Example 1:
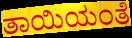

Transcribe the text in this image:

ತಾಯಿಯಂತೆ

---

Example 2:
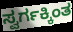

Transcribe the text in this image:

ಸ್ವರ್ಗಕ್ಕಿಂತ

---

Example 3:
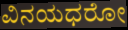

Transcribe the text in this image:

ವಿನಯಧರೋ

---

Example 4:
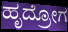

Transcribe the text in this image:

ಹೃದ್ರೋಗ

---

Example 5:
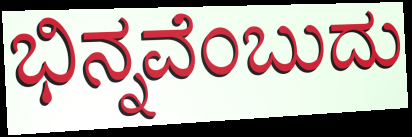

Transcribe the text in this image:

ಭಿನ್ನವೆಂಬುದು